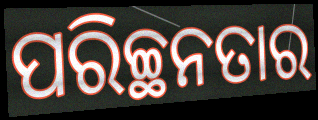
ପରିଚ୍ଛନତାର